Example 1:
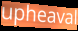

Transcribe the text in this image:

upheaval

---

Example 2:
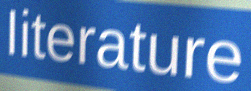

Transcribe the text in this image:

Iiterature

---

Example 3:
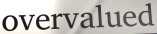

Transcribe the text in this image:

overvalued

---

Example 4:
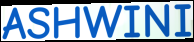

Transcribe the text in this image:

ASHWINI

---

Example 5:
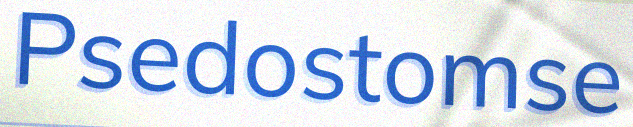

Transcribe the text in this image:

Psedostomse